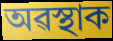
অৱস্থাক